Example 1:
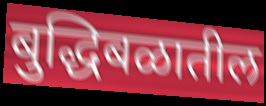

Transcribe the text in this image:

बुद्धिबळातील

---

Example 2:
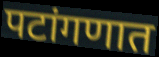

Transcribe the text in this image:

पटांगणात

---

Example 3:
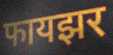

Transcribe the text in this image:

फायझर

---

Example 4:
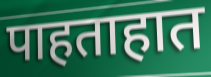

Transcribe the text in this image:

पाहताहात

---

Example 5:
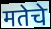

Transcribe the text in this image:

मतेचे